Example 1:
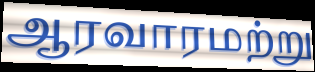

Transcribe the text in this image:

ஆரவாரமற்று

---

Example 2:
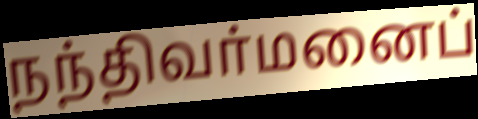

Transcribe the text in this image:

நந்திவர்மனைப்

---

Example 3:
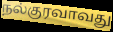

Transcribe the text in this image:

நல்குரவாவது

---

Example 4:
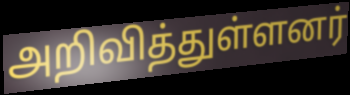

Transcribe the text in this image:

அறிவித்துள்ளனர்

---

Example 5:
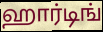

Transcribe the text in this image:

ஹார்டிங்